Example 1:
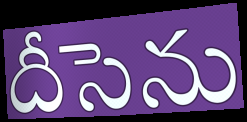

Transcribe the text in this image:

దీసెను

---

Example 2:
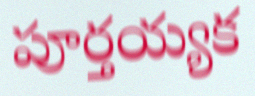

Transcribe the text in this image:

పూర్తయ్యక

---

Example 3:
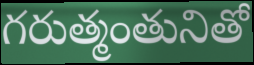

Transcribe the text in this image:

గరుత్మంతునితో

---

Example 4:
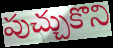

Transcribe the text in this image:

పుచ్చుకొని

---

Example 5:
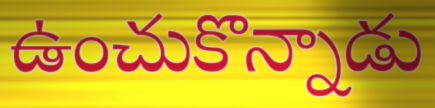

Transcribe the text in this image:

ఉంచుకొన్నాడు